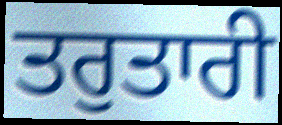
ਤਰੁਤਾਰੀ